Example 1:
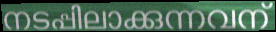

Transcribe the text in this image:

നടപ്പിലാക്കുന്നവന്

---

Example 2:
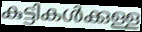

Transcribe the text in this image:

കുട്ടികൾക്കുള്ള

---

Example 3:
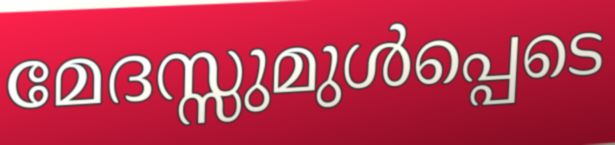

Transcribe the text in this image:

മേദസ്സുമുൾപ്പെടെ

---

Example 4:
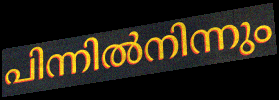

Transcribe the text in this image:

പിന്നിൽനിന്നും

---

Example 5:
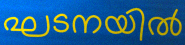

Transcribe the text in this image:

ഘടനയിൽ